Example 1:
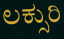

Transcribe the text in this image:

ಲಕ್ಸುರಿ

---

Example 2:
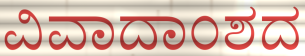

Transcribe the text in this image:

ವಿವಾದಾಂಶದ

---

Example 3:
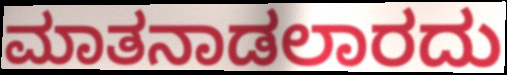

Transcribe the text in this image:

ಮಾತನಾಡಲಾರದು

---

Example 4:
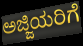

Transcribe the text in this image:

ಅಜ್ಜಿಯರಿಗೆ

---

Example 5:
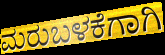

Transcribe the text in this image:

ಮರುಬಳಕೆಗಾಗಿ